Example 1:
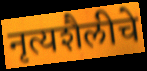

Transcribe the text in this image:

नृत्यशैलीचे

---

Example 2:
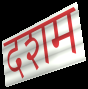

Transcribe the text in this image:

दशम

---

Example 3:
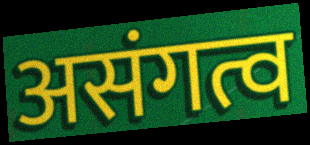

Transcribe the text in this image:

असंगत्व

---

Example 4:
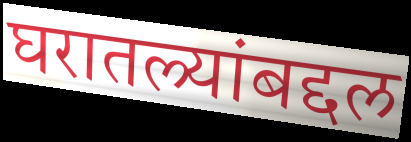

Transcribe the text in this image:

घरातल्यांबद्दल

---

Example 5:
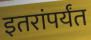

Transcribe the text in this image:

इतरांपर्यंत